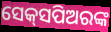
ସେକ୍‌ସପିଅରଙ୍କ